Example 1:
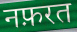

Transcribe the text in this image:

नफ़रत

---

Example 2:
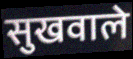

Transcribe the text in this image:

सुखवाले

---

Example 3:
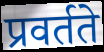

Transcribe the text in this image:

प्रवर्तते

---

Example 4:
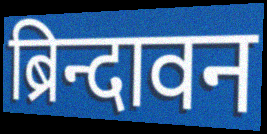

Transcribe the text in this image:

ब्रिन्दावन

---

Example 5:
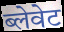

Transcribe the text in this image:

ब्लेवेट